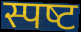
स्‍पष्‍ट